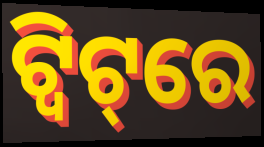
ଟ୍ବିଟ୍‌ରେ